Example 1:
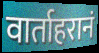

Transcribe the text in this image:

वार्ताहरानं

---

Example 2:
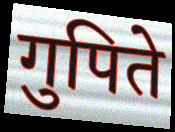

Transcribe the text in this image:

गुपिते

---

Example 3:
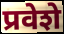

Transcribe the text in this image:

प्रवेशे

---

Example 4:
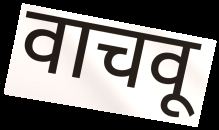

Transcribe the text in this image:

वाचवू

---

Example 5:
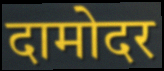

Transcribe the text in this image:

दामोदर